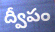
ద్వీపం